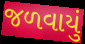
જળવાયું